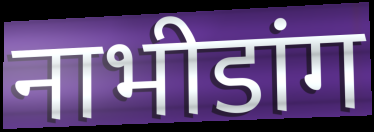
नाभीडांग